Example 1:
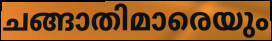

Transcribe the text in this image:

ചങ്ങാതിമാരെയും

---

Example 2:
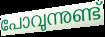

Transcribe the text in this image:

പോവുന്നുണ്ട്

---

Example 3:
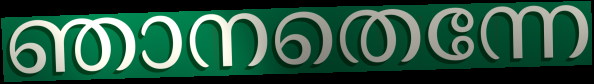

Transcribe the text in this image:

ഞാനതെന്നേ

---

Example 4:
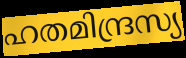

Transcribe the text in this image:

ഹതമിന്ദ്രസ്യ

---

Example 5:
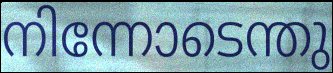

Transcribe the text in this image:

നിന്നോടെന്തു